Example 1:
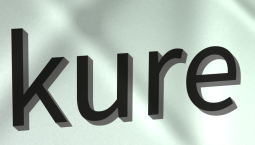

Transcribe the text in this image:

kure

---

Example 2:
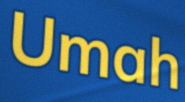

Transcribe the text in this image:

Umah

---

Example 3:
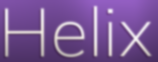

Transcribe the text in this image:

Helix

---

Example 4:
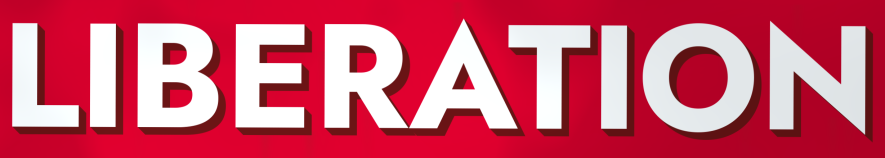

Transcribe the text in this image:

LIBERATION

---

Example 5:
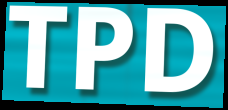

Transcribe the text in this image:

TPD